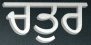
ਚਤੁਰ